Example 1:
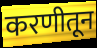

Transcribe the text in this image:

करणीतून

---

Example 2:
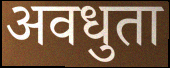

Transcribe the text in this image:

अवधुता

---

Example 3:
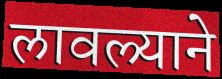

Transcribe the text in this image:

लावल्याने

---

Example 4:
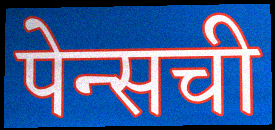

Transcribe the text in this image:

पेन्सची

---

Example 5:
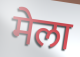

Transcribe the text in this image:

मेला